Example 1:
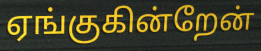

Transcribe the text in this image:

ஏங்குகின்றேன்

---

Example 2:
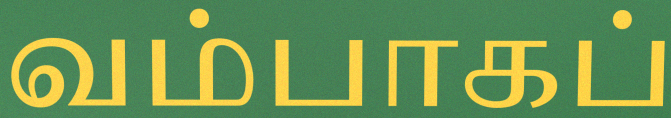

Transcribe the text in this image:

வம்பாகப்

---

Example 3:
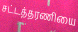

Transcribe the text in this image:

சட்டத்தரணியை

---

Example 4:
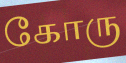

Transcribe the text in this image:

கோரு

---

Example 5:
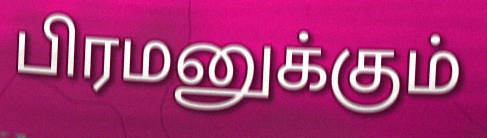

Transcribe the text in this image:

பிரமனுக்கும்